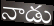
నాడు